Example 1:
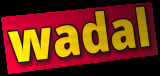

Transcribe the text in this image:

wadal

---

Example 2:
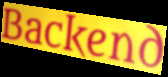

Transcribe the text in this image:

Backend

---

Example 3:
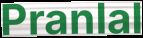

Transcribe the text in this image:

Pranlal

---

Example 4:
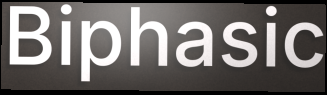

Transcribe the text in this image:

Biphasic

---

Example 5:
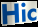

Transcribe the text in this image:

Hic